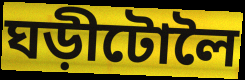
ঘড়ীটোলৈ